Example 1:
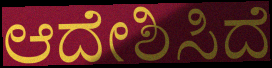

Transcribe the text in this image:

ಆದೇಶಿಸಿದೆ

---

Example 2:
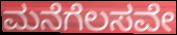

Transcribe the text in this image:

ಮನೆಗೆಲಸವೇ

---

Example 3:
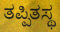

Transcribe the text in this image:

ತಪ್ಪಿತಸ್ಥ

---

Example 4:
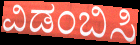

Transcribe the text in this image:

ವಿಡಂಬಿಸಿ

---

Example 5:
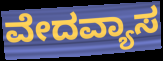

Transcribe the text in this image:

ವೇದವ್ಯಾಸ